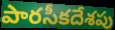
పారసీకదేశపు